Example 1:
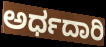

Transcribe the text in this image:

ಅರ್ಧದಾರಿ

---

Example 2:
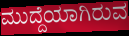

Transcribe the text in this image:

ಮುದ್ದೆಯಾಗಿರುವ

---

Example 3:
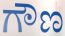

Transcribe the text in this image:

ಗೌಣ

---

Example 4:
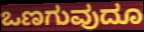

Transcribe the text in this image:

ಒಣಗುವುದೂ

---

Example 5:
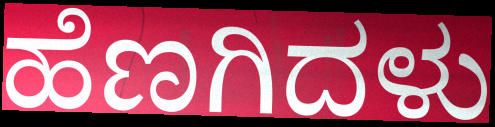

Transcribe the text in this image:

ಹೆಣಗಿದಳು